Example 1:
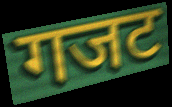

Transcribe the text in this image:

गजट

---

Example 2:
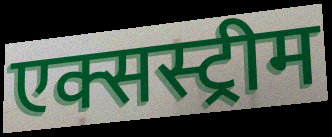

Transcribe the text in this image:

एक्सस्ट्रीम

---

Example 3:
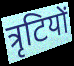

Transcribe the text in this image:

त्रृटियों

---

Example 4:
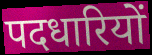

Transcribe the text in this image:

पदधारियों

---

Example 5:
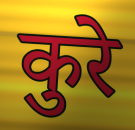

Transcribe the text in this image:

कुरे